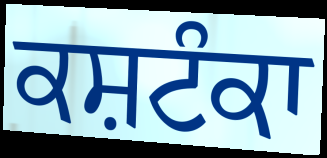
ਕਸ਼ਟੰਕਾ